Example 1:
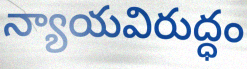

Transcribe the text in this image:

న్యాయవిరుద్ధం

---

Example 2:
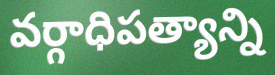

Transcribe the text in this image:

వర్గాధిపత్యాన్ని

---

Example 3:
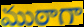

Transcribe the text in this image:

ముఠాగా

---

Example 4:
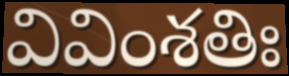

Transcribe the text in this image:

వివింశతిః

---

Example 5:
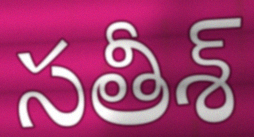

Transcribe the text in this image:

సతీశ్